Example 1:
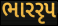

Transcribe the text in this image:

ભારરૃપ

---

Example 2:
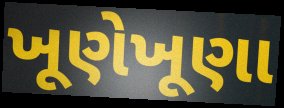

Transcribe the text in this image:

ખૂણેખૂણા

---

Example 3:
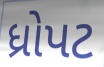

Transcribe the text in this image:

ધ્રોપટ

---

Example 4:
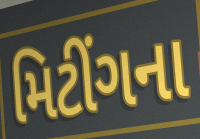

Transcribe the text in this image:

મિટીંગના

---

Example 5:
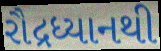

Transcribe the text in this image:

રૌદ્રધ્યાનથી